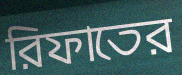
রিফাতের